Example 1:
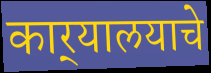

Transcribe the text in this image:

कार्यालयाचे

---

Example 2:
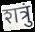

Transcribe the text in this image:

शत्रुं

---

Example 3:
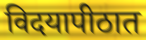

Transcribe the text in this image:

विदयापीठात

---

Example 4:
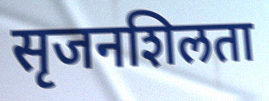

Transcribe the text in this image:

सृजनशिलता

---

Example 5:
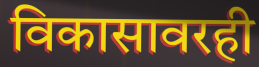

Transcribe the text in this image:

विकासावरही